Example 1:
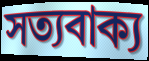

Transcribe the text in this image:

সত্যবাক্য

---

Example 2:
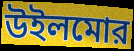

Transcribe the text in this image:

উইলমোর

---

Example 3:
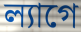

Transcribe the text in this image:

ল্যাগে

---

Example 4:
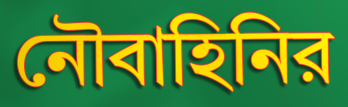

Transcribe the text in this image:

নৌবাহিনির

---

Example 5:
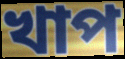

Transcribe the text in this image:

খাপ